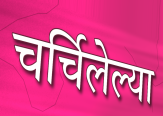
चर्चिलेल्या